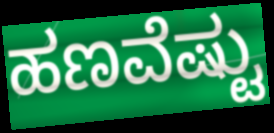
ಹಣವೆಷ್ಟು